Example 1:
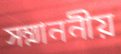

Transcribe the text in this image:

সম্মাননীয়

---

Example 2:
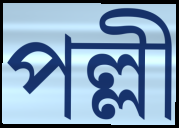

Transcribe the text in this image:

পল্লী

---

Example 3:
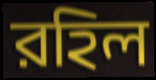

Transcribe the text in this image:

রহিল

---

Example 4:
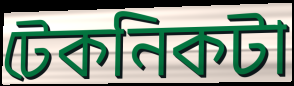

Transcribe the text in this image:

টেকনিকটা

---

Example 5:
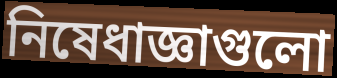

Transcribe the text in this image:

নিষেধাজ্ঞাগুলো